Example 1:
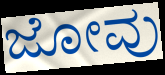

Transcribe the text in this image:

ಜೋವು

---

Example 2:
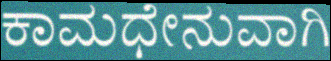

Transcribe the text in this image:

ಕಾಮಧೇನುವಾಗಿ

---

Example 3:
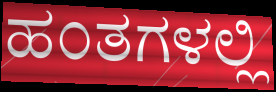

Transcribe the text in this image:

ಹಂತಗಳಲ್ಲಿ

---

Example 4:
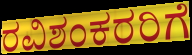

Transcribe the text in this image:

ರವಿಶಂಕರರಿಗೆ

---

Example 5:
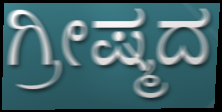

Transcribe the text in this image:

ಗ್ರೀಷ್ಮದ